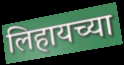
लिहायच्या